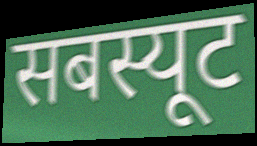
सबस्यूट